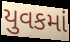
યુવકમાં